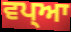
ਵਪ੍ਆ